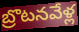
బ్రొటనవేళ్ల